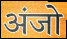
अंजो